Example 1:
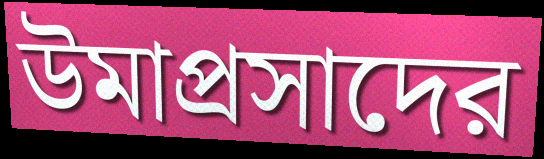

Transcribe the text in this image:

উমাপ্রসাদের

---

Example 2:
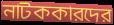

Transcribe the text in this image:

নাটককারদের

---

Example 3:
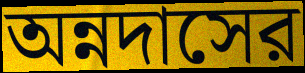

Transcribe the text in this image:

অন্নদাসের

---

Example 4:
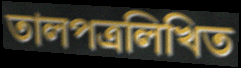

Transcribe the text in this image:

তালপত্রলিখিত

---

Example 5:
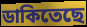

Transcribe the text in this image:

ডাকিতেছে